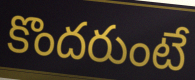
కొందరుంటే